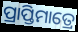
ପ୍ରାପ୍ତିମାତ୍ରେ